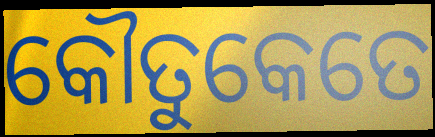
କୌତୁକେତେ